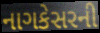
નાગકેસરની